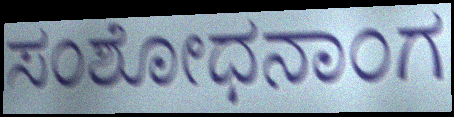
ಸಂಶೋಧನಾಂಗ